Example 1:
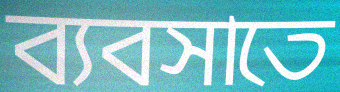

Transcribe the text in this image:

ব্যবসাতে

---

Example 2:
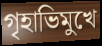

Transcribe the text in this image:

গৃহাভিমুখে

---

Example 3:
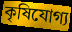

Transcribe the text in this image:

কৃষিযোগ্য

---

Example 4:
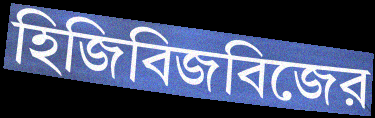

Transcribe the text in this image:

হিজিবিজবিজের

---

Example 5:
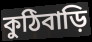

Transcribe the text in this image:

কুঠিবাড়ি